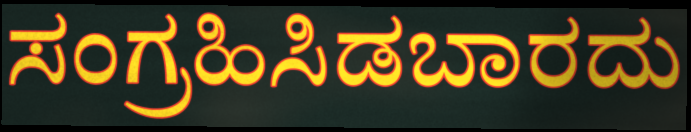
ಸಂಗ್ರಹಿಸಿಡಬಾರದು